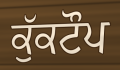
ਕੁੱਕਟੌਪ